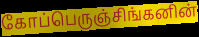
கோப்பெருஞ்சிங்கனின்